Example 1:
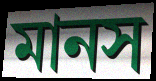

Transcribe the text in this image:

মানস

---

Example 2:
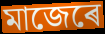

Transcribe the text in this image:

মাজেৰে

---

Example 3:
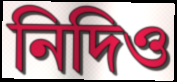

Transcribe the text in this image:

নিদিও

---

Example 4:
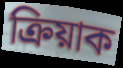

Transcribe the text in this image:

ক্ৰিয়াক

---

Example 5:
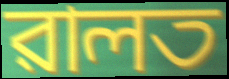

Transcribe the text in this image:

ৱালত